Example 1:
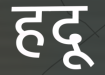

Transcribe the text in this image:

हदू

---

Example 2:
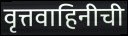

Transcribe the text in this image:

वृत्तवाहिनीची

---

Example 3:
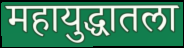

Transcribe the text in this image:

महायुद्धातला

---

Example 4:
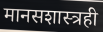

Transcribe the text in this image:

मानसशास्त्रही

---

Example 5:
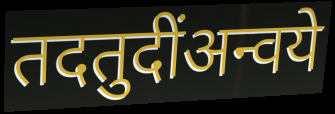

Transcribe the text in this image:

तदतुदींअन्वये